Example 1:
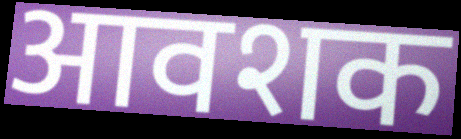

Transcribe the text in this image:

आवशक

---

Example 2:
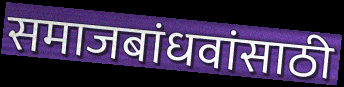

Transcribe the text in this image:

समाजबांधवांसाठी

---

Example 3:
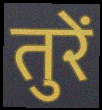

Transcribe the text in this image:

तुरें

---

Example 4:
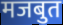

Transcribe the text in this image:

मजबुत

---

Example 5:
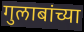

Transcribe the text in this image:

गुलाबांच्या